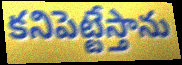
కనిపెట్టేస్తాను